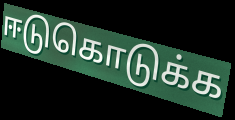
ஈடுகொடுக்க